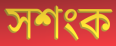
সশংক